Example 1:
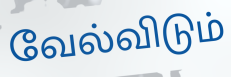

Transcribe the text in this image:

வேல்விடும்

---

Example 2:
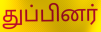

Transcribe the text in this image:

துப்பினர்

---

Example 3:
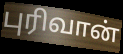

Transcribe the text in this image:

புரிவான்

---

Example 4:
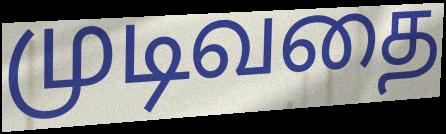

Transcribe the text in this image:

முடிவதை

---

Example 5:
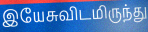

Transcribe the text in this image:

இயேசுவிடமிருந்து